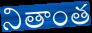
నితాంత